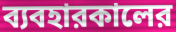
ব্যবহারকালের